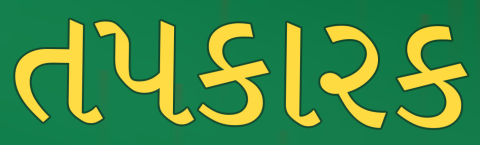
તપકારક